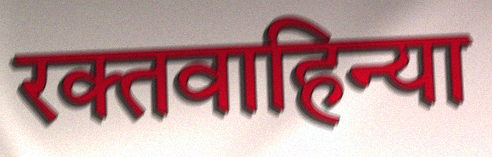
रक्तवाहिन्या